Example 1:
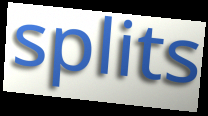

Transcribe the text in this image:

splits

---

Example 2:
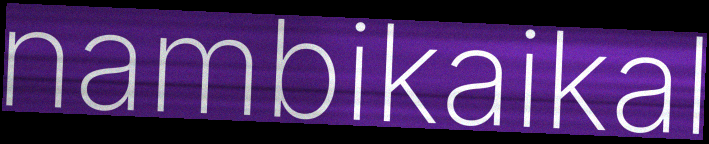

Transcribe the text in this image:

nambikaikal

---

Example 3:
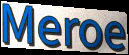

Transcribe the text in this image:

Meroe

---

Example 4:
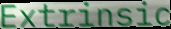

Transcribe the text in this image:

Extrinsic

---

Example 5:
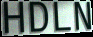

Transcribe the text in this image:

HDLN